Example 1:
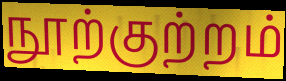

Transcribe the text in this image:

நூற்குற்றம்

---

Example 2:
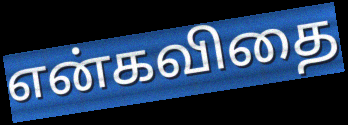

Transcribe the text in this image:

என்கவிதை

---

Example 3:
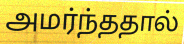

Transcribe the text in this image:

அமர்ந்ததால்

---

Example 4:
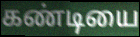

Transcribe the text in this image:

கண்டியை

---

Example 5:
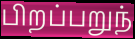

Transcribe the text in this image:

பிறப்பறுந்